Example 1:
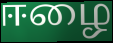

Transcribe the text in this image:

ஈழை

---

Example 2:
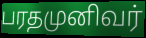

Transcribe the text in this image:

பரதமுனிவர்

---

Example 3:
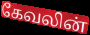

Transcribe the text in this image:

கேவலின்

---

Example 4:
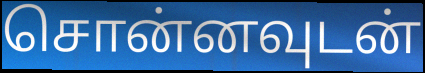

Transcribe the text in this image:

சொன்னவுடன்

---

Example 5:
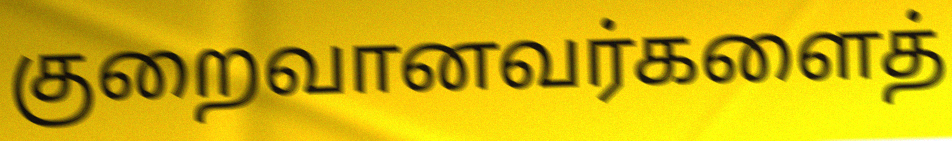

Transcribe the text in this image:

குறைவானவர்களைத்